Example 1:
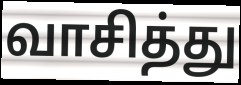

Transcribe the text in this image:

வாசித்து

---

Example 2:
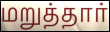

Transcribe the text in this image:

மறுத்தார்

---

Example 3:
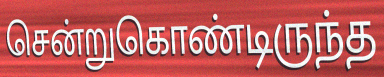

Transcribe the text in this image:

சென்றுகொண்டிருந்த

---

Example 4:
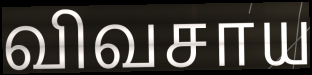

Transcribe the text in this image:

விவசாய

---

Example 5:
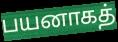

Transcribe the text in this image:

பயனாகத்